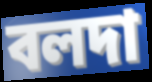
বলদা